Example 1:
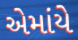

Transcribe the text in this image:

એમાંયે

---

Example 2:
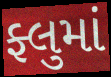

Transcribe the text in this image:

ફ્લુમાં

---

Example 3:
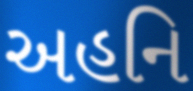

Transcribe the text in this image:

અહનિ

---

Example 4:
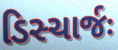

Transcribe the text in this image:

ડિસ્ચાર્જઃ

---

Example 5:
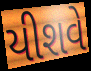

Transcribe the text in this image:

યીશવે